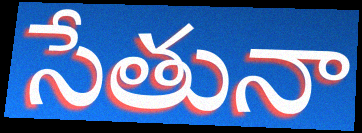
సేతునా